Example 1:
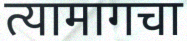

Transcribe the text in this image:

त्यामागचा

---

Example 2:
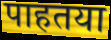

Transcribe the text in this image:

पाहतया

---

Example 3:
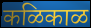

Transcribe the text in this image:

कळिकाळ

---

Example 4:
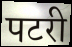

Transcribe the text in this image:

पटरी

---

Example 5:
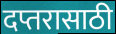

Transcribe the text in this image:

दप्तरासाठी